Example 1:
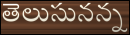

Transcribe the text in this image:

తెలుసునన్న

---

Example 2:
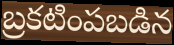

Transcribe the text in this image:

బ్రకటింపబడిన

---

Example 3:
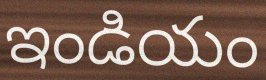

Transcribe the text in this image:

ఇండియం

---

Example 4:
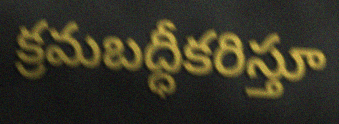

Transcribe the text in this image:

క్రమబద్ధీకరిస్తూ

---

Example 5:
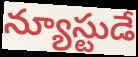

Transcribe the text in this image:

న్యూస్టుడే